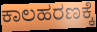
ಕಾಲಹರಣಕ್ಕೆ